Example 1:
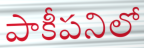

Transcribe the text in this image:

పాకీపనిలో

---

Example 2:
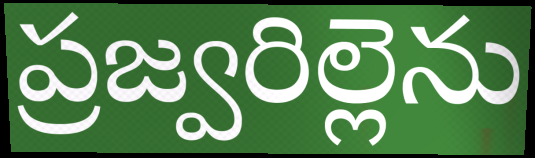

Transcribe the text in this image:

ప్రజ్వరిల్లెను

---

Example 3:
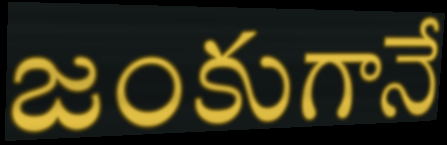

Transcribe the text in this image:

జంకుగానే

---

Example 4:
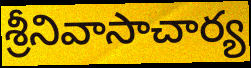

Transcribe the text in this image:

శ్రీనివాసాచార్య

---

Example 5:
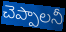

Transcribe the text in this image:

చెప్పాలనీ